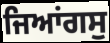
ਜਿਆਂਗਸੁ